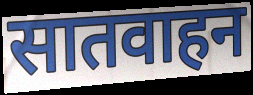
सातवाहन